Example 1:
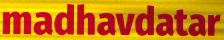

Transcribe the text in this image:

madhavdatar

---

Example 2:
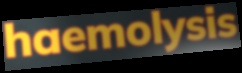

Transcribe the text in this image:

haemolysis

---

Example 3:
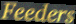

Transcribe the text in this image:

Feeders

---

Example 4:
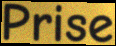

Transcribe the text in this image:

Prise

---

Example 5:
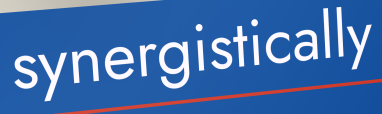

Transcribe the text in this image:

synergistically